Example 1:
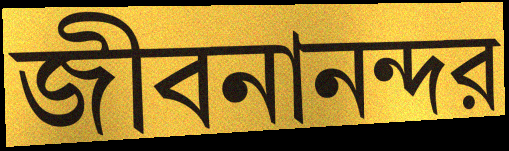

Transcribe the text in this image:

জীবনানন্দর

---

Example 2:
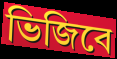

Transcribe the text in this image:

ভিজিবে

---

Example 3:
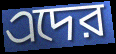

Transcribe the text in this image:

এদের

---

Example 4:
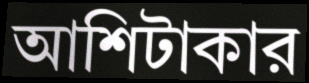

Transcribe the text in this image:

আশিটাকার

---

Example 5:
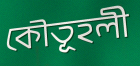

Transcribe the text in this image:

কৌতূহলী